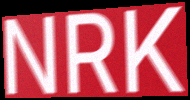
NRK